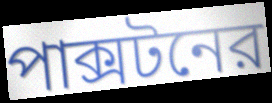
পাক্সটনের